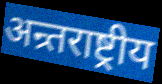
अन्र्तराष्ट्रीय